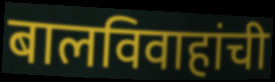
बालविवाहांची